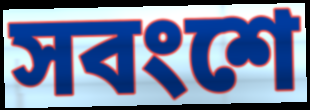
সবংশে